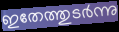
ഇതേത്തുടർന്നു